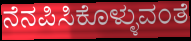
ನೆನಪಿಸಿಕೊಳ್ಳುವಂತೆ